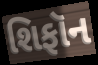
શિફૉન